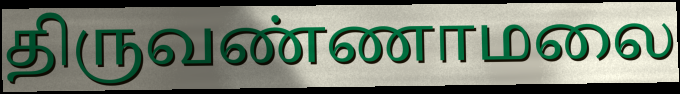
திருவண்ணாமலை